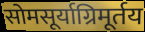
सोमसूर्याग्रिमूर्तय